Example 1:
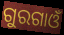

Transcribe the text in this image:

ଗୁରଗାଓଁ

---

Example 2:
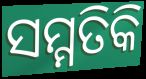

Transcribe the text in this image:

ସମ୍ମତିକି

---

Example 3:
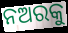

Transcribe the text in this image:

ନଅରକୁ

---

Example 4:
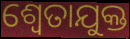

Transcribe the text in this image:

ଶ୍ଵେତାଯୁକ୍ତ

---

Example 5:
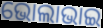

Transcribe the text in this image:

ଭୋଲାଭାଇ